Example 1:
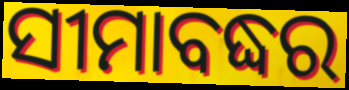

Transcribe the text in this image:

ସୀମାବଦ୍ଧର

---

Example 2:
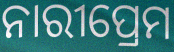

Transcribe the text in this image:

ନାରୀପ୍ରେମ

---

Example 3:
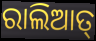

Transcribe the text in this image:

ରାଲିଆତ୍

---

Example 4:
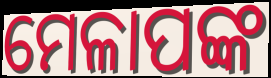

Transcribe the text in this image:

ମେଳାପଙ୍କ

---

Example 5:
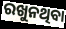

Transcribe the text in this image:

ରଖୁନଥିବା